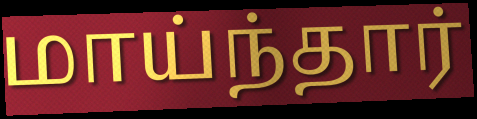
மாய்ந்தார்